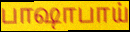
பாஷாபாய்